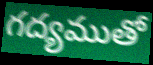
గద్యముతో